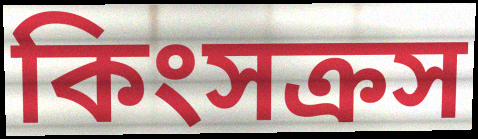
কিংসক্রস